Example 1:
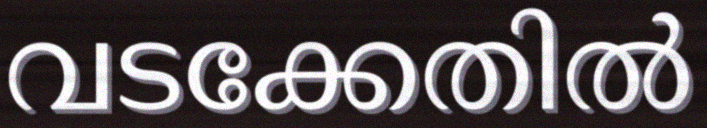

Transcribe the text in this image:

വടക്കേതിൽ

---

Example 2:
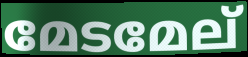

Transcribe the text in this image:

മേടമേല്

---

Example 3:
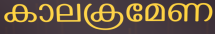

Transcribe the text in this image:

കാലക്രമേണ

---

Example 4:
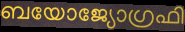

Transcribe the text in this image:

ബയോജ്യോഗ്രഫി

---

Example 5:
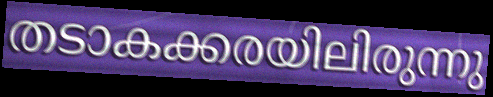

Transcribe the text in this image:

തടാകക്കരയിലിരുന്നു